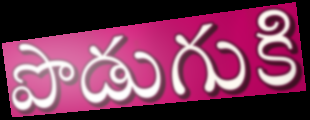
పొడుగుకి